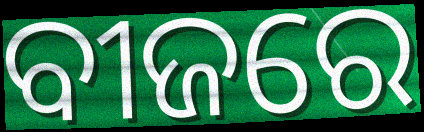
ବୀଜରେ